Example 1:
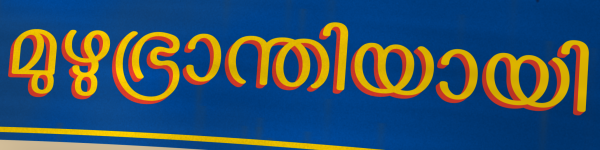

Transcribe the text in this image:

മുഴുഭ്രാന്തിയായി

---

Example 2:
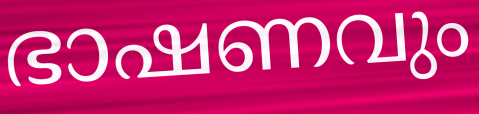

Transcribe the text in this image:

ഭാഷണവും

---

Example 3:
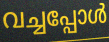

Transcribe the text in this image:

വച്ചപ്പോൾ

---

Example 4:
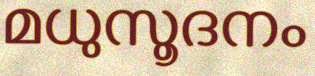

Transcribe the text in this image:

മധുസൂദനം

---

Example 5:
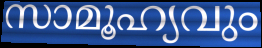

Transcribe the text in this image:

സാമൂഹ്യവും